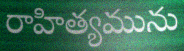
రాహిత్యమును